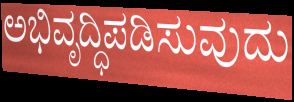
ಅಭಿವೃದ್ಧಿಪಡಿಸುವುದು